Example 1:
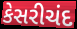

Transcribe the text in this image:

કેસરીચંદ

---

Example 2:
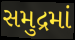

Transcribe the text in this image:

સમુદ્રમાં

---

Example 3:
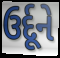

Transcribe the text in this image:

ઉર્દૂને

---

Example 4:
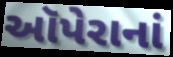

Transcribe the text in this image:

ઑપેરાનાં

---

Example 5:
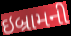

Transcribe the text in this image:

ઇબ્રામની